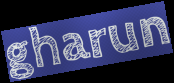
gharun